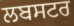
ਲਬਸਟਰ